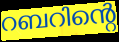
റബറിന്റെ